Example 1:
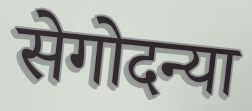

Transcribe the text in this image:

सेगोदन्या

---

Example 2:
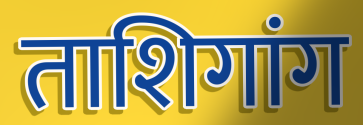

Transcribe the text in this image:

ताशिगांग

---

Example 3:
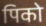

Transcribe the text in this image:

पिको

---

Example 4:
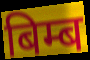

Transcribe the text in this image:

बिम्ब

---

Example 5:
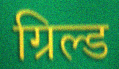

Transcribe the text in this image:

ग्रिल्ड